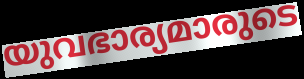
യുവഭാര്യമാരുടെ